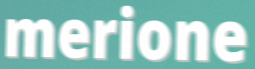
merione